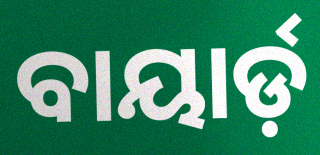
ବାୟାର୍ଡ଼